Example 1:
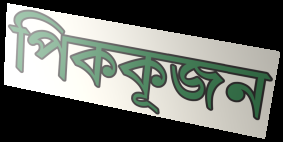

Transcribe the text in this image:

পিককূজন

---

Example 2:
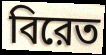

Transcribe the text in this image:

বিরেত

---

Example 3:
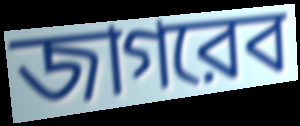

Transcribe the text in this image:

জাগরেব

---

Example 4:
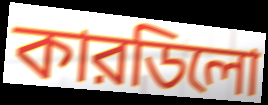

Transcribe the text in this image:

কারডিলো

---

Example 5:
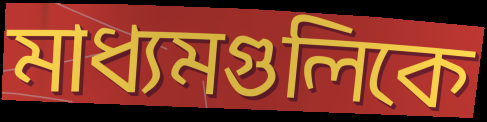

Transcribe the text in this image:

মাধ্যমগুলিকে